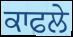
ਕਾਫਲੇ